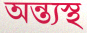
অন্ত্যস্থ